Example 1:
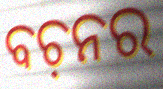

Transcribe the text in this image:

ବଚ଼ନର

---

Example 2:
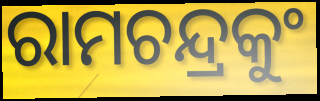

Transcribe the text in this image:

ରାମଚନ୍ଦ୍ରକୁଂ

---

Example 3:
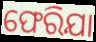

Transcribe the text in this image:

ଫେରିଯା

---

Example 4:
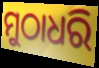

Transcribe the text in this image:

ମୁଠାଧରି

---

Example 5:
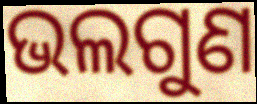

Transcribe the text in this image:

ଭଲଗୁଣ